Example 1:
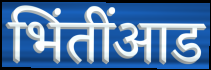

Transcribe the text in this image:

भिंतींआड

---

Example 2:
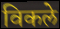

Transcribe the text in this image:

विकले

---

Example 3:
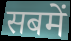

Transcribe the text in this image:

सबमें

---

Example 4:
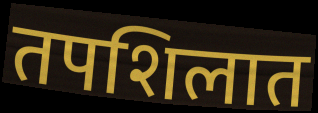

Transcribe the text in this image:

तपशिलात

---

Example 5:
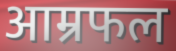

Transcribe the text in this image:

आम्रफल